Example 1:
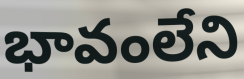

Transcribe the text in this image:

భావంలేని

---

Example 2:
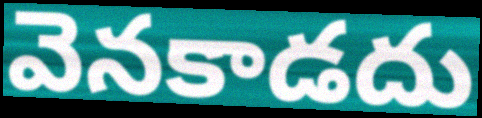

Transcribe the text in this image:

వెనకాడదు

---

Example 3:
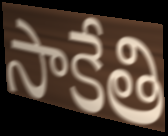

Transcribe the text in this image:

సాకేతి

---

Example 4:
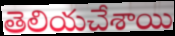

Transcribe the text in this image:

తెలియచేశాయి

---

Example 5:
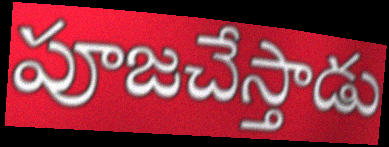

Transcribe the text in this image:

పూజచేస్తాడు